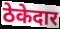
ठेकेदार